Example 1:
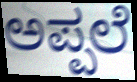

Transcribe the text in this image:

ಅಪ್ಪಲೆ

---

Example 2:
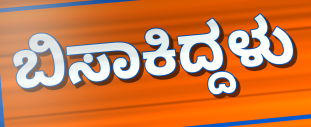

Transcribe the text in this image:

ಬಿಸಾಕಿದ್ದಳು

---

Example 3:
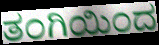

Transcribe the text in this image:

ತಂಗಿಯಿಂದ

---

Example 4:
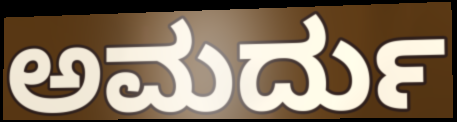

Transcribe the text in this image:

ಅಮರ್ದು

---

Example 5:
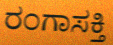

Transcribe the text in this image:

ರಂಗಾಸಕ್ತಿ